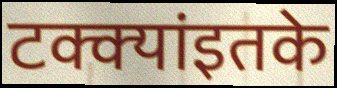
टक्क्यांइतके